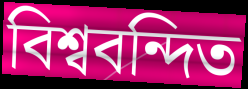
বিশ্ববন্দিত